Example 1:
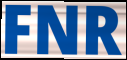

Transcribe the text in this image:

FNR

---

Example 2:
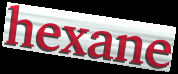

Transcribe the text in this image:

hexane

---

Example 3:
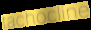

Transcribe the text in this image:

tachocline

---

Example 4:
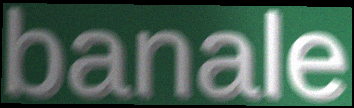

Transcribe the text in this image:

banale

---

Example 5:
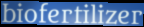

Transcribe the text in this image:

biofertilizer